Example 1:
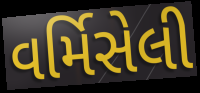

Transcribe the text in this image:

વર્મિસેલી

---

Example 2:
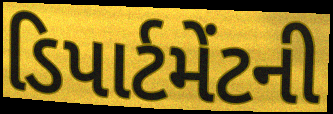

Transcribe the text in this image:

ડિપાર્ટમેંટની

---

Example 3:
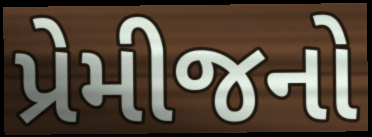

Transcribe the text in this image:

પ્રેમીજનો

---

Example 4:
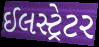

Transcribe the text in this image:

ઈલસ્ટ્રેટર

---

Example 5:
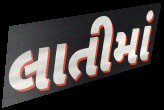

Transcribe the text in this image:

લાતીમાં